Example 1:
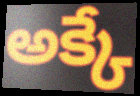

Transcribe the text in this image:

అక్కే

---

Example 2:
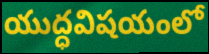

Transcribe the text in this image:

యుద్ధవిషయంలో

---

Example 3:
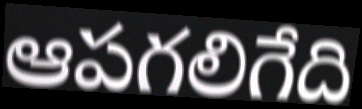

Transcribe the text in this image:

ఆపగలిగేది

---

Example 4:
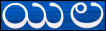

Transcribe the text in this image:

యిల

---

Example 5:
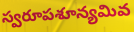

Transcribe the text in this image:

స్వరూపశూన్యమివ